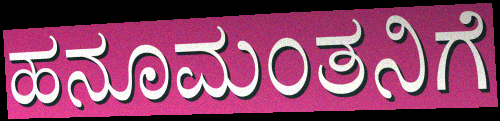
ಹನೂಮಂತನಿಗೆ